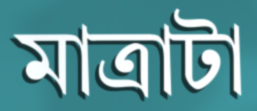
মাত্রাটা